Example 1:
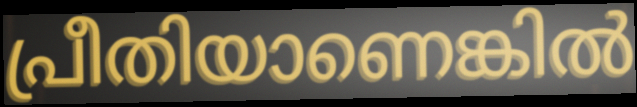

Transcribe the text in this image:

പ്രീതിയാണെങ്കിൽ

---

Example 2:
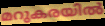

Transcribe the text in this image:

മറുകരയിൽ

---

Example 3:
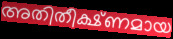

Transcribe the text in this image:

അതിതീക്ഷ്ണമായ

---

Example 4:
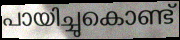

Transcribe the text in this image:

പായിച്ചുകൊണ്ട്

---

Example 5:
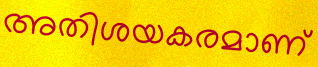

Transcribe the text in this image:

അതിശയകരമാണ്